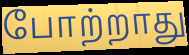
போற்றாது